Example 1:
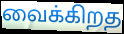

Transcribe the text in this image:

வைக்கிறத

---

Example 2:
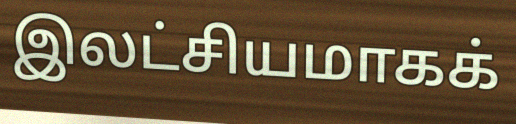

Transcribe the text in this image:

இலட்சியமாகக்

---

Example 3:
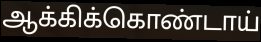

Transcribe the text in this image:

ஆக்கிக்கொண்டாய்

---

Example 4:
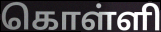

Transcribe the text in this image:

கொள்ளி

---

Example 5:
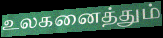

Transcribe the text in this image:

உலகனைத்தும்